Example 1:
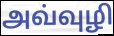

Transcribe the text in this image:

அவ்வுழி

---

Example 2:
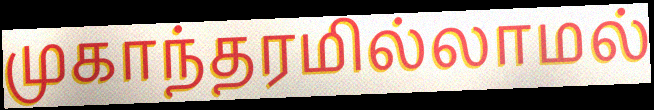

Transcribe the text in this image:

முகாந்தரமில்லாமல்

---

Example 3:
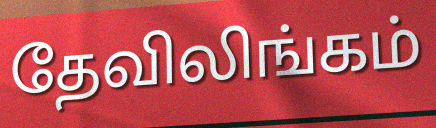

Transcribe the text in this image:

தேவிலிங்கம்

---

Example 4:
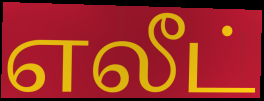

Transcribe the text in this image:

எலீட்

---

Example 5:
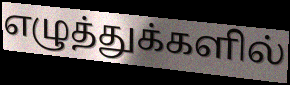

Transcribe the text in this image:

எழுத்துக்களில்